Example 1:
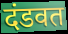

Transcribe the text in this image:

दंडवत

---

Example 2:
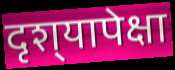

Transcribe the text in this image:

दृश्यापेक्षा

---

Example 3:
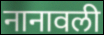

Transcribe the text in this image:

नानावली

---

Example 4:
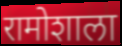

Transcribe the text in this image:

रामोशाला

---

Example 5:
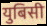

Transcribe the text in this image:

युबिसी